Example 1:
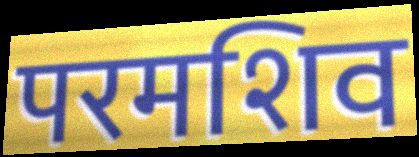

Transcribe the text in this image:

परमशिव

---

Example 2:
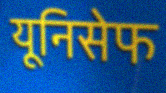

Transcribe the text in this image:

यूनिसेफ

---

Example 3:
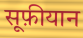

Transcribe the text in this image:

सूफ़ीयान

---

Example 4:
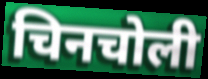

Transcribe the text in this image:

चिनचोली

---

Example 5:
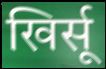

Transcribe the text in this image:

खिर्सू